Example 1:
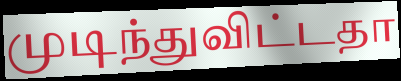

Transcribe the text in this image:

முடிந்துவிட்டதா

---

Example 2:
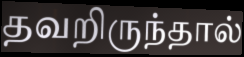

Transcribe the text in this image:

தவறிருந்தால்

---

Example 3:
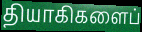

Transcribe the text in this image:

தியாகிகளைப்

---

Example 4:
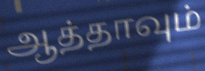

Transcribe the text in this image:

ஆத்தாவும்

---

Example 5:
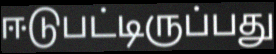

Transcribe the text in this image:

ஈடுபட்டிருப்பது